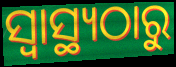
ସ୍ବାସ୍ଥ୍ୟଠାରୁ